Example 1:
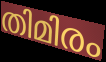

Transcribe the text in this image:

തിമിരം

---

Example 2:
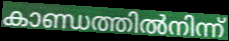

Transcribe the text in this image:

കാണ്ഡത്തിൽനിന്ന്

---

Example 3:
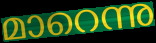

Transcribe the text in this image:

മാറെന്നു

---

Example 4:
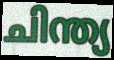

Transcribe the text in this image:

ചിന്ത്യ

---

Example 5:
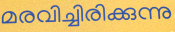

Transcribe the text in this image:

മരവിച്ചിരിക്കുന്നു